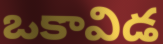
ఒకావిడ